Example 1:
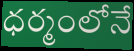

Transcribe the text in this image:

ధర్మంలోనే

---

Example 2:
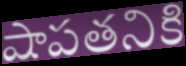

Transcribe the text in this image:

షాపతనికి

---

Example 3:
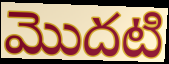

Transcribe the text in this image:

మొదటి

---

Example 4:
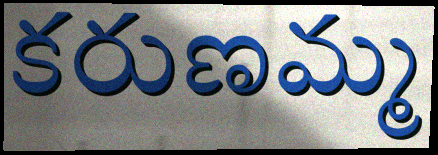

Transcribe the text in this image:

కరుణమ్మ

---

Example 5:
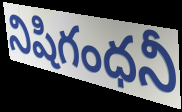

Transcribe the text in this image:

నిషిగంధనీ